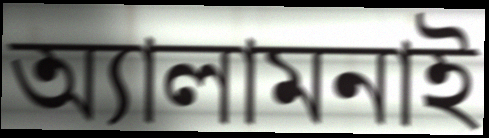
অ্যালামনাই